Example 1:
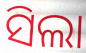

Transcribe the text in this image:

ସିଲା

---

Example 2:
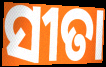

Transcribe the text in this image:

ସୀତା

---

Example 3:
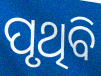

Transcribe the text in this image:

ପୃଥିବି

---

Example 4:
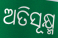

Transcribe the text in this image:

ଅତିସୂକ୍ଷ୍ମ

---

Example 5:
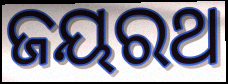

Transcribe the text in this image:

ଜୟରଥ